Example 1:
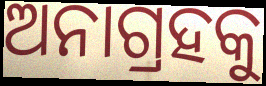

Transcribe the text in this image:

ଅନାଗ୍ରହକୁ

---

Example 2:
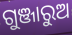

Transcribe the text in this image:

ଗୁଞ୍ଜାରୁଅ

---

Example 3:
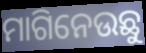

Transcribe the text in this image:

ମାଗିନେଉଛୁ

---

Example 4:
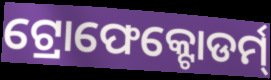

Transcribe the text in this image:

ଟ୍ରୋଫେକ୍ଟୋଡର୍ମ୍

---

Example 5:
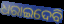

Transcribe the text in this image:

ଧରାଇଦେବି